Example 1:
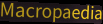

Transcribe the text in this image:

Macropaedia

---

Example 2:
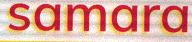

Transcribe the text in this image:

samara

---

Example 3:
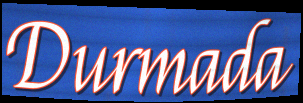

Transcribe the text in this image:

Durmada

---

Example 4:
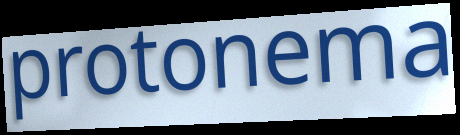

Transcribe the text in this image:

protonema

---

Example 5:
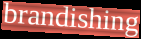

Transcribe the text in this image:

brandishing